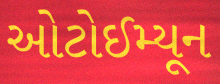
ઓટોઈમ્યૂન